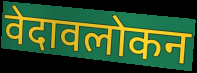
वेदावलोकन